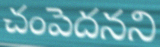
చంపెదనని